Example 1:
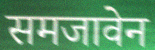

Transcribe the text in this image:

समजावेन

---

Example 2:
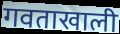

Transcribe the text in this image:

गवताखाली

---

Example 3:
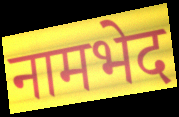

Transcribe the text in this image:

नामभेद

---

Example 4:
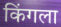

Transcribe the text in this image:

किंगला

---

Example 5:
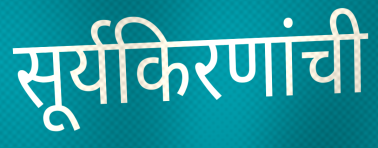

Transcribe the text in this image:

सूर्यकिरणांची